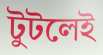
টুটলেই